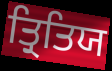
ਤ੍ਰਿਤਿਯ